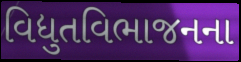
વિદ્યુતવિભાજનના